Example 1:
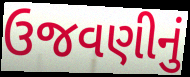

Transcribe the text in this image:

ઉજવણીનું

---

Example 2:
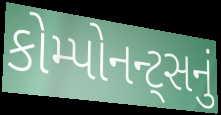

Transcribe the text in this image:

કોમ્પોનન્ટ્સનું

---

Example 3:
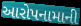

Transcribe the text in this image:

આરોપનામાની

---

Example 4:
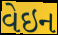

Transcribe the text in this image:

વેઇન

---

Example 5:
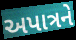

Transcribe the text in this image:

અપાત્રને